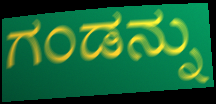
ಗಂಡನ್ನು